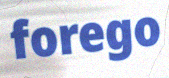
forego